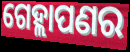
ଗେହ୍ଲାପଣର